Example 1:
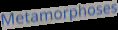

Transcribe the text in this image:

Metamorphoses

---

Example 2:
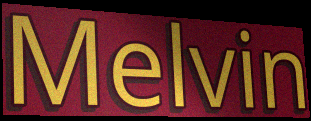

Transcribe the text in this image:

Melvin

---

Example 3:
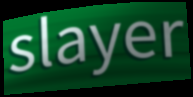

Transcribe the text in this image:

slayer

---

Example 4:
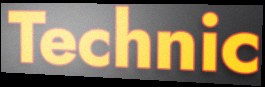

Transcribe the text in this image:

Technic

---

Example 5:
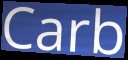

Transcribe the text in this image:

Carb